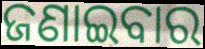
ଜଣାଇବାର